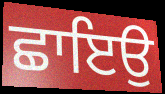
ਛਾਇਉ